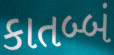
કાતબ્બં